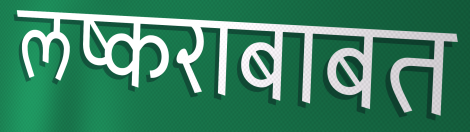
लष्कराबाबत